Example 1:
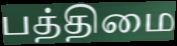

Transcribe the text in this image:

பத்திமை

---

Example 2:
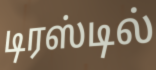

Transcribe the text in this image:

டிரஸ்டில்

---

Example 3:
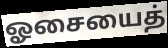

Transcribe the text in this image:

ஓசையைத்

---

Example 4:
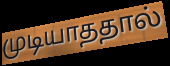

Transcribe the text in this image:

முடியாததால்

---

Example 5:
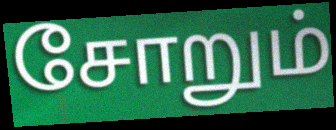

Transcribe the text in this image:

சோறும்